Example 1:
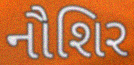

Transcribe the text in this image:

નૌશિર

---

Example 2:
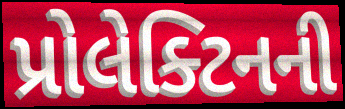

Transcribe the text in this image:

પ્રોલેક્ટિનની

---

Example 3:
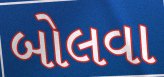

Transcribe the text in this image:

બોલવા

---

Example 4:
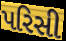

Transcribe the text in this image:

પરિસી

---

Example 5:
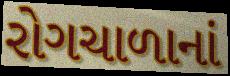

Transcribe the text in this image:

રોગચાળાનાં